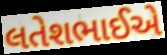
લતેશભાઈએ